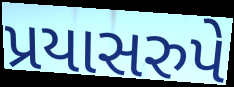
પ્રયાસરુપે